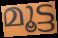
മൂട്ട